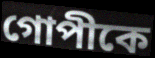
গোপীকে